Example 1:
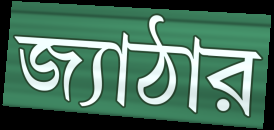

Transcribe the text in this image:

জ্যাঠার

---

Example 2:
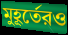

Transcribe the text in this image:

মুহূর্তেরও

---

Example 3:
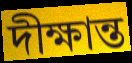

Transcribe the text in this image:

দীক্ষান্ত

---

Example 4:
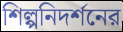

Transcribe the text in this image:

শিল্পনিদর্শনের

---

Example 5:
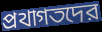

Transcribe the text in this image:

প্রথাগতদের